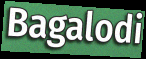
Bagalodi